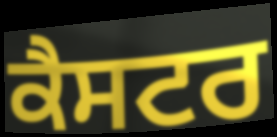
ਕੈਸਟਰ